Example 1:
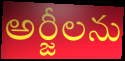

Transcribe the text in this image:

అర్జీలను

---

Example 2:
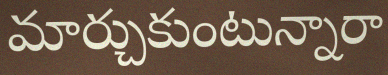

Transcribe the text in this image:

మార్చుకుంటున్నారా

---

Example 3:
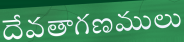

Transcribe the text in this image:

దేవతాగణములు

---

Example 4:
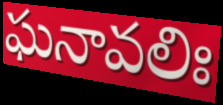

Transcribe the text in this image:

ఘనావలిః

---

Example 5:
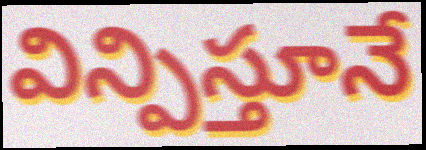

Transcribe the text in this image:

విన్పిస్తూనే